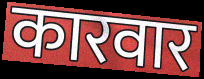
कारवार